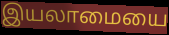
இயலாமையை